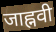
जाह्नवी